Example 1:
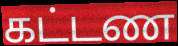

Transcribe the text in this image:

கட்டண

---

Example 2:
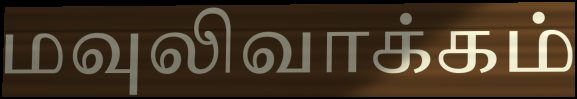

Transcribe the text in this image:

மவுலிவாக்கம்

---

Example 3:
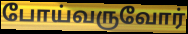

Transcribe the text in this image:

போய்வருவோர்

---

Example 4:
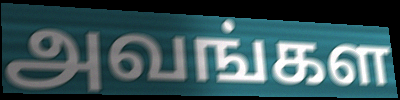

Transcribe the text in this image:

அவங்கள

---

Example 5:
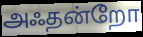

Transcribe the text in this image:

அஃதன்றோ